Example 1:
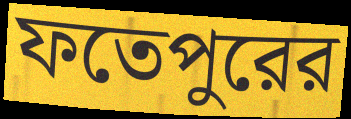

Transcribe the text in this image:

ফতেপুরের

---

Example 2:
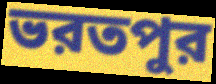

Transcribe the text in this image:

ভরতপুর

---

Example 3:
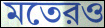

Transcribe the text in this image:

মতেরও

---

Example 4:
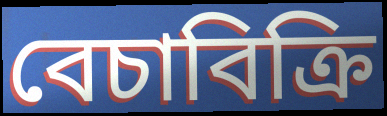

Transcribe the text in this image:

বেচাবিক্রি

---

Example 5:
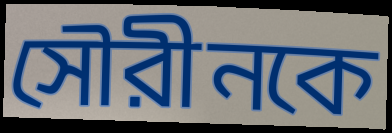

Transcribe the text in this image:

সৌরীনকে